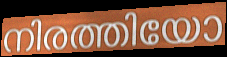
നിരത്തിയോ